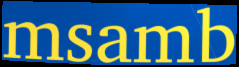
msamb